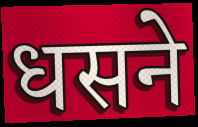
धसने